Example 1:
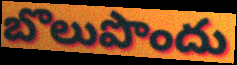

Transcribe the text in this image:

బొలుపొందు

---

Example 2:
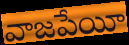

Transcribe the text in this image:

వాజపేయీ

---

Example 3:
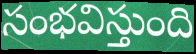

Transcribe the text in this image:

సంభవిస్తుంది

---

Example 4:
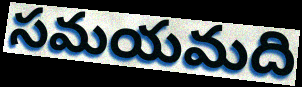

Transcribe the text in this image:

సమయమది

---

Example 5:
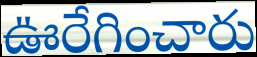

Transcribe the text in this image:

ఊరేగించారు